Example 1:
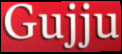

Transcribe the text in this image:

Gujju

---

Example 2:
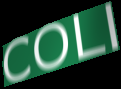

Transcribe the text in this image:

COLI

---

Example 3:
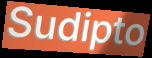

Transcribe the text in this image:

Sudipto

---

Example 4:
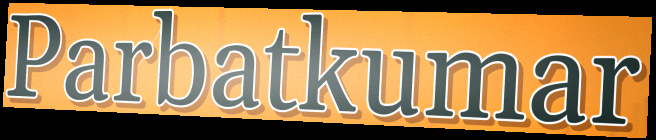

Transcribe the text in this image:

Parbatkumar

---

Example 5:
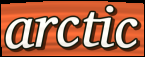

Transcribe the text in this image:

arctic